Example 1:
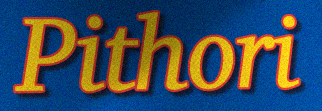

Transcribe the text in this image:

Pithori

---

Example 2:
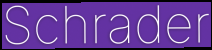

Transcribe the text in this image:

Schrader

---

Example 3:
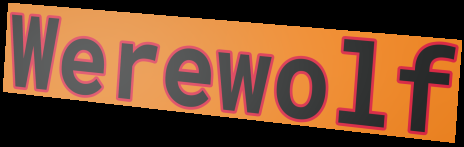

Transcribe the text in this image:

Werewolf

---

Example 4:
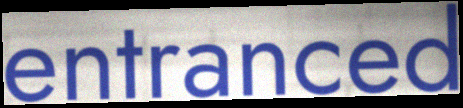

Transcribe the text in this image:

entranced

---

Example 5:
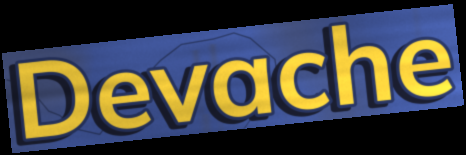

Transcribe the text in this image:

Devache